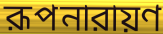
রূপনারায়ণ